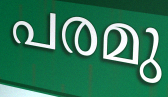
പരമു